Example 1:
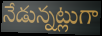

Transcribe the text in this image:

నేడున్నట్లుగా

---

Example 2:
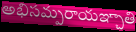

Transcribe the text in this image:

అభిసమ్పరాయఞ్చాతి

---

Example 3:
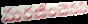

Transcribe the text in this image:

మరణించెనని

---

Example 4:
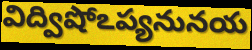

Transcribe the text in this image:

విద్విషోఽప్యనునయ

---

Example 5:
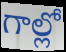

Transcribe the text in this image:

గాల్లో